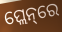
ପ୍ଲେନ୍‌ରେ